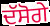
ਦੱਸੋਗੇ